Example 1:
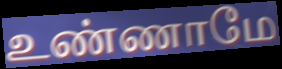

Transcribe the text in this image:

உண்ணாமே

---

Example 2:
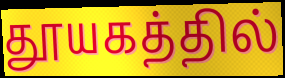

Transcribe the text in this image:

தூயகத்தில்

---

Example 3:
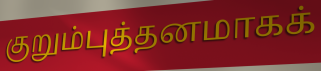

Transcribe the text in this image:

குறும்புத்தனமாகக்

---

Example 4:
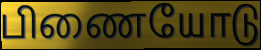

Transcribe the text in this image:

பிணையோடு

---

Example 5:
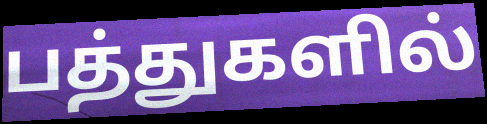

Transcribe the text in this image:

பத்துகளில்